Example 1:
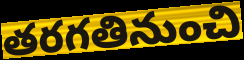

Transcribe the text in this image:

తరగతినుంచి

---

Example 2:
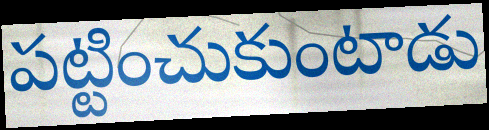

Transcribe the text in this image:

పట్టించుకుంటాడు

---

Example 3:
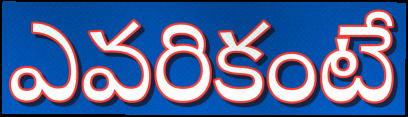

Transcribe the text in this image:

ఎవరికంటే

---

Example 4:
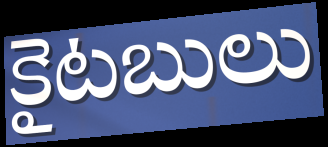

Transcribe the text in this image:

కైటబులు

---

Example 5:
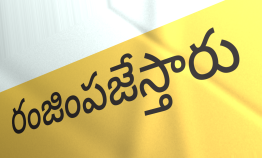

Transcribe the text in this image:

రంజింపజేస్తారు